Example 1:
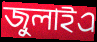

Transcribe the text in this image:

জুলাইএ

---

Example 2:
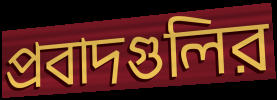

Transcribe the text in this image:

প্রবাদগুলির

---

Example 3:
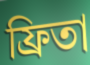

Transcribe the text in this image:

ফ্রিতা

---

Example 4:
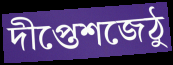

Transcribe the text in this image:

দীপ্তেশজেঠু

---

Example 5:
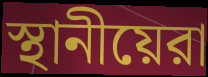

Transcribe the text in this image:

স্থানীয়েরা